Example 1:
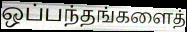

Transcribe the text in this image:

ஒப்பந்தங்களைத்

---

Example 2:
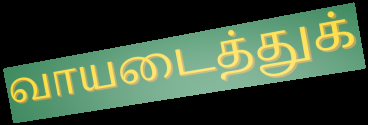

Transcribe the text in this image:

வாயடைத்துக்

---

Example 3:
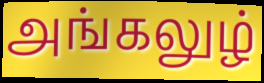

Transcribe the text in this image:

அங்கலுழ்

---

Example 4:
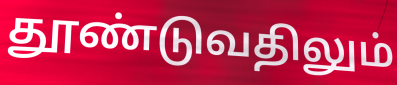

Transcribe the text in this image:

தூண்டுவதிலும்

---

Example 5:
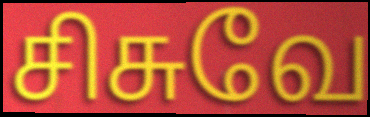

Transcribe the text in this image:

சிசுவே